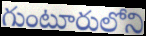
గుంటూరులోని